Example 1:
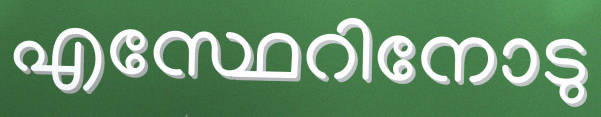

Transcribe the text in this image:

എസ്ഥേറിനോടു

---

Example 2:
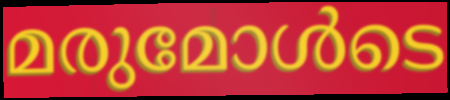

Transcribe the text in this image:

മരുമോൾടെ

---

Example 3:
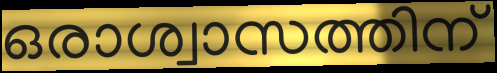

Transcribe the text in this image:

ഒരാശ്വാസത്തിന്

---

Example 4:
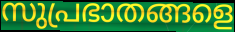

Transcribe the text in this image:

സുപ്രഭാതങ്ങളെ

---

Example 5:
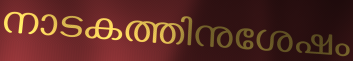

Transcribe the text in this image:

നാടകത്തിനുശേഷം